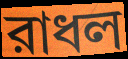
রাধল